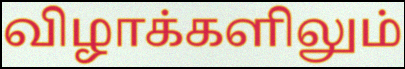
விழாக்களிலும்